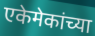
एकेमेकांच्या